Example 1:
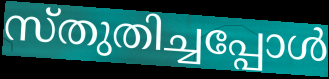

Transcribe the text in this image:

സ്തുതിച്ചപ്പോൾ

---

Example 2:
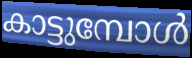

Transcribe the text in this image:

കാട്ടുമ്പോൾ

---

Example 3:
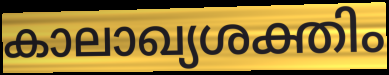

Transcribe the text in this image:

കാലാഖ്യശക്തിം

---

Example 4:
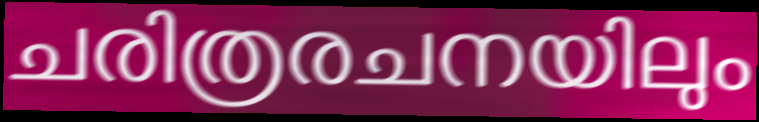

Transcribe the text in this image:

ചരിത്രരചനയിലും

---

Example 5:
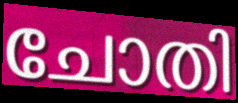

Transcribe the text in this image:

ചോതി